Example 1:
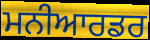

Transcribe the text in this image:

ਮਨੀਆਰਡਰ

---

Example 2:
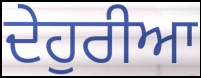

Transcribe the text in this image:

ਦੇਹੁਰੀਆ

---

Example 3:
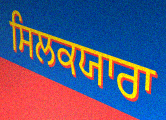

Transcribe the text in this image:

ਸਿਲਕਯਾਰਾ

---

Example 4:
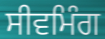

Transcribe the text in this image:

ਸੀਵਮਿੰਗ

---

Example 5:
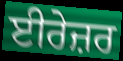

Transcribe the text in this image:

ਈਰੇਜ਼ਰ